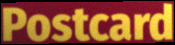
Postcard